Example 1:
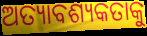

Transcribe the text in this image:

ଅତ୍ୟାବଶ୍ୟକତାକୁ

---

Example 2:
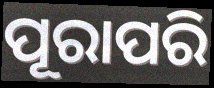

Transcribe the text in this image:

ପୂରାପରି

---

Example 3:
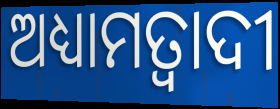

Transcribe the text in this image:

ଅଧ୍ୟାମତ୍ବାଦୀ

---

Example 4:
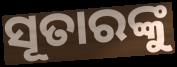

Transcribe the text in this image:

ସୂତାରଙ୍କୁ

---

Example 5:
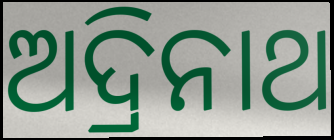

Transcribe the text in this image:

ଅଦ୍ରିନାଥ